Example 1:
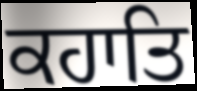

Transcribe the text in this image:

ਕਹਾਤਿ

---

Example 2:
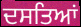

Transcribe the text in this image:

ਦਸਤਿਆਂ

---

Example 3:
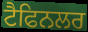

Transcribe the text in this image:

ਟੈਫਿਨਲਰ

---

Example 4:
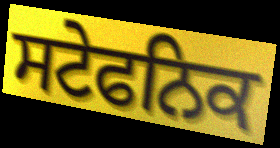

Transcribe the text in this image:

ਸਟੇਫਨਿਕ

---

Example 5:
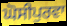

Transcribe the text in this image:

ਘੋਸੀਪੁਰਵਾ